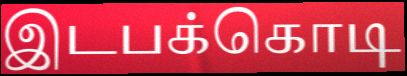
இடபக்கொடி